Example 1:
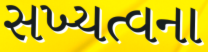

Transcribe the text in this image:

સખ્યત્વના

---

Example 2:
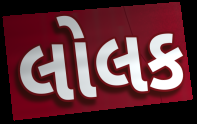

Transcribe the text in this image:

લોલક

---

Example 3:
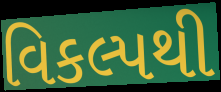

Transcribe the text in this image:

વિકલ્પથી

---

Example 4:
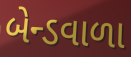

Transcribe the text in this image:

બેન્ડવાળા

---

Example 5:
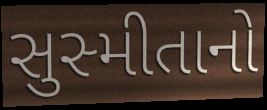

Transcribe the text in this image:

સુસ્મીતાનો